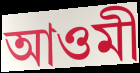
আওমী